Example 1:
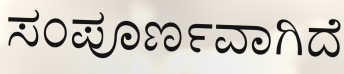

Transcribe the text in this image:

ಸಂಪೂರ್ಣವಾಗಿದೆ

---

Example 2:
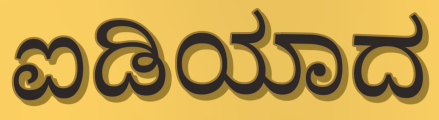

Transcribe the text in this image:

ಐಡಿಯಾದ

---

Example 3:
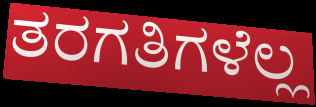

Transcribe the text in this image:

ತರಗತಿಗಳೆಲ್ಲ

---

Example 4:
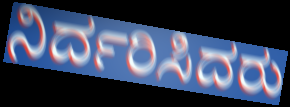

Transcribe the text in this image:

ನಿರ್ದರಿಸಿದರು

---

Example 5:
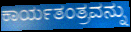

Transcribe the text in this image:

ಕಾರ್ಯತಂತ್ರವನ್ನು